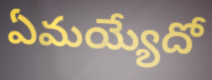
ఏమయ్యేదో